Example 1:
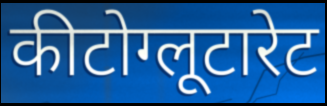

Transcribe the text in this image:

कीटोग्लूटारेट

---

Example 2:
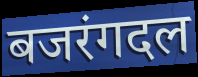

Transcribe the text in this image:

बजरंगदल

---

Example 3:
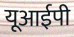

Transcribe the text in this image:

यूआईपी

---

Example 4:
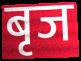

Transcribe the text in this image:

बृज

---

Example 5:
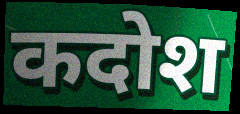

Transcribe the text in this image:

कदोश